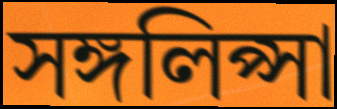
সঙ্গলিপ্সা